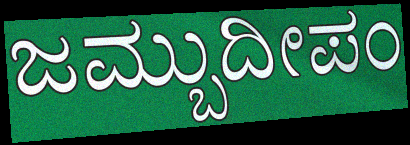
ಜಮ್ಬುದೀಪಂ